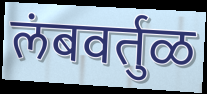
लंबवर्तुळ